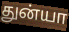
துன்யா